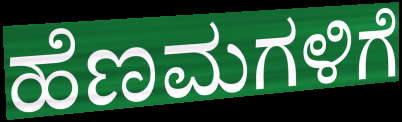
ಹೆಣಮಗಳಿಗೆ